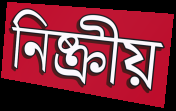
নিষ্ক্রীয়